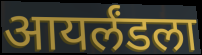
आयर्लंडला